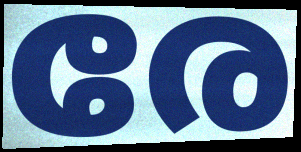
രേ